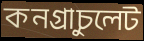
কনগ্রাচুলেট